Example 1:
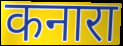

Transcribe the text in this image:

कनारा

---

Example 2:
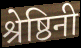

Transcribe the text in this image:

श्रेष्ठिनी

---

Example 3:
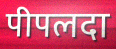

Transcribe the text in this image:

पीपलदा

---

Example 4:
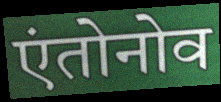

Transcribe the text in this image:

एंतोनोव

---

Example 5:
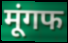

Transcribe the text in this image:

मूंगफ